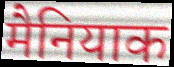
मैनियाक